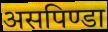
असपिण्डा